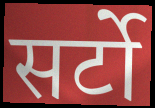
सर्टो